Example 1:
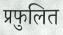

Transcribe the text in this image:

प्रफुलित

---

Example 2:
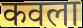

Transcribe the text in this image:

कवला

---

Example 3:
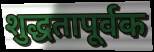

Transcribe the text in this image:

शुद्धतापूर्वक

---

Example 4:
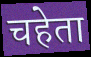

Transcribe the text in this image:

चहेता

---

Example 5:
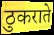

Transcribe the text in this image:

ठुकराते